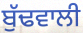
ਬੁੱਢਵਾਲੀ